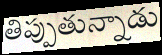
తిప్పుతున్నాడు